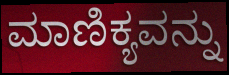
ಮಾಣಿಕ್ಯವನ್ನು